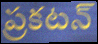
ప్రకటన్